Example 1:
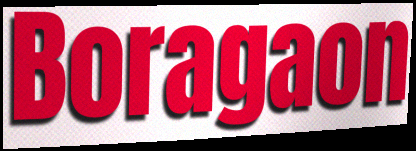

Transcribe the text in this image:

Boragaon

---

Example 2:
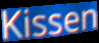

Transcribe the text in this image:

Kissen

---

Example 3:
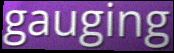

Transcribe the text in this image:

gauging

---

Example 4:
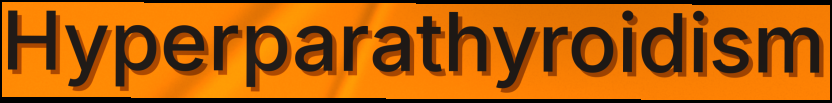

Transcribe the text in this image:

Hyperparathyroidism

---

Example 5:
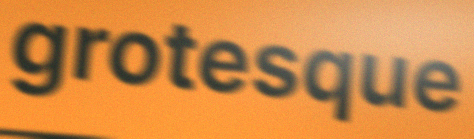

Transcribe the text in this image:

grotesque